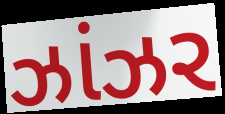
ઝાંઝર